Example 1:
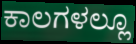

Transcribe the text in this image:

ಕಾಲಗಳಲ್ಲೂ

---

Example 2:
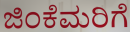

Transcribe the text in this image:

ಜಿಂಕೆಮರಿಗೆ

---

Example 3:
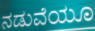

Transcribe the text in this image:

ನಡುವೆಯೂ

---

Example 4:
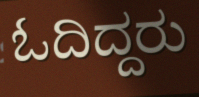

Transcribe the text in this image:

ಓದಿದ್ದರು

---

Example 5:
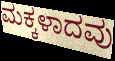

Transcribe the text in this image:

ಮಕ್ಕಳಾದವು